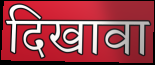
दिखावा